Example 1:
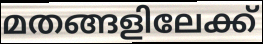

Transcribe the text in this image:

മതങ്ങളിലേക്ക്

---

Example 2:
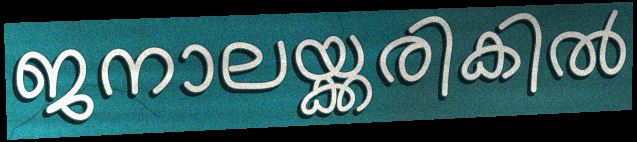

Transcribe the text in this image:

ജനാലയ്ക്കരികിൽ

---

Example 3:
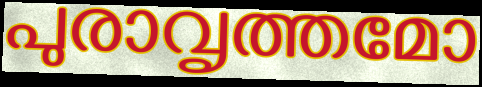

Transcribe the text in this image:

പുരാവൃത്തമോ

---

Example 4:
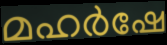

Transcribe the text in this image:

മഹർഷേ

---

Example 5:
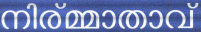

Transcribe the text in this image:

നിര്മ്മാതാവ്